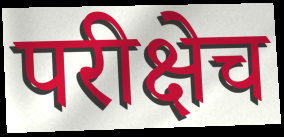
परीक्षेच